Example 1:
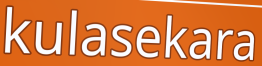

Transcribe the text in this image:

kulasekara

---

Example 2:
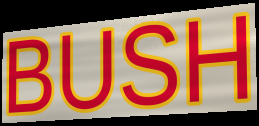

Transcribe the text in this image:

BUSH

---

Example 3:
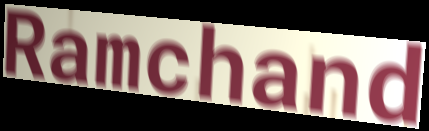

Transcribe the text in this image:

Ramchand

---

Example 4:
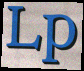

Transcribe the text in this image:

Lp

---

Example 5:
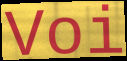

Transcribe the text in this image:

Voi